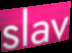
slav